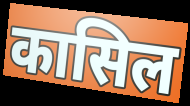
कासिल